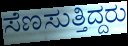
ಸೆಣಸುತ್ತಿದ್ದರು